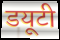
डयूटी